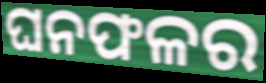
ଘନଫଳର